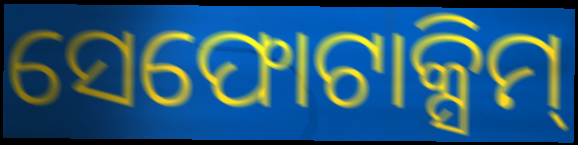
ସେଫୋଟାକ୍ସିମ୍